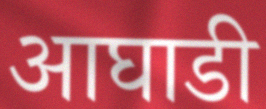
आघाडी